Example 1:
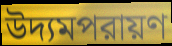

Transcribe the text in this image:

উদ্যমপরায়ণ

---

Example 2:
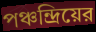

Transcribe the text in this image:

পঞ্চন্দ্রিয়ের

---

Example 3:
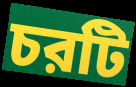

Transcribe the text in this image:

চরটি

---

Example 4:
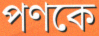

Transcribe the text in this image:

পণকে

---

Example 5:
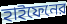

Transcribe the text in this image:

হাইফেনের